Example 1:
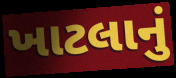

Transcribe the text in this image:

ખાટલાનું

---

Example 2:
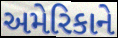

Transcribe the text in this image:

અમેરિકાને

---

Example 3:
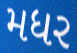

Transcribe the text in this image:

મધર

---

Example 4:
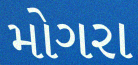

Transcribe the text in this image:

મોગરા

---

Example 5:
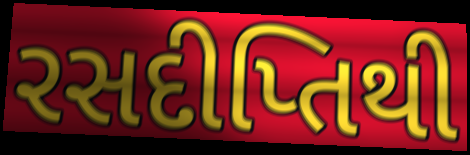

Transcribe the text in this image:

રસદીપ્તિથી